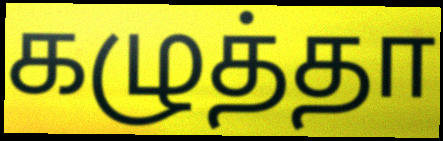
கழுத்தா